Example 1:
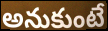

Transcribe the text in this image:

అనుకుంటే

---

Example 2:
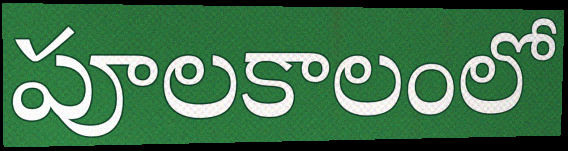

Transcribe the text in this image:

పూలకాలంలో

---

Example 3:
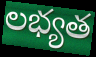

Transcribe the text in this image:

లభ్యత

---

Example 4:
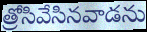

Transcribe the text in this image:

త్రోసివేసినవాడను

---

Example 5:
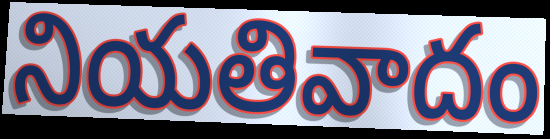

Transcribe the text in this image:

నియతివాదం